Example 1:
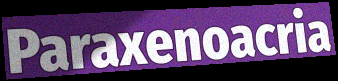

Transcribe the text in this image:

Paraxenoacria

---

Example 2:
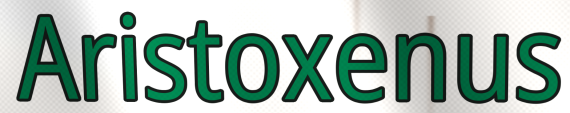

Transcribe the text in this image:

Aristoxenus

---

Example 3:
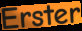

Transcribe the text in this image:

Erster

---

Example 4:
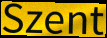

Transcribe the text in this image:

Szent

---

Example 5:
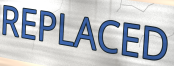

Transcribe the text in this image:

REPLACED